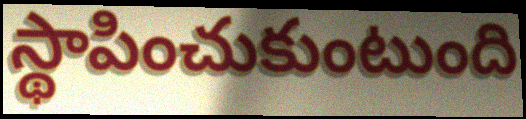
స్థాపించుకుంటుంది